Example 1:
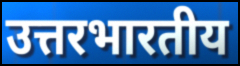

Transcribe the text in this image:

उत्तरभारतीय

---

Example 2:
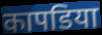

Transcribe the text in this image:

कापडिया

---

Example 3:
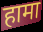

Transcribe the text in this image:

हामा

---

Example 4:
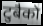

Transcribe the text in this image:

टुबैको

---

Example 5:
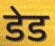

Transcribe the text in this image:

डेड